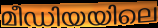
മീഡിയയിലെ